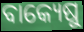
ବାକ୍ୟେଷୁ